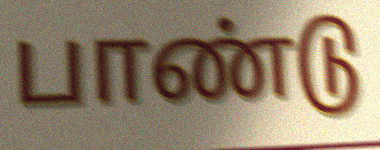
பாண்டு